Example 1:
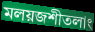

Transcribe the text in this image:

মলয়জশীতলাং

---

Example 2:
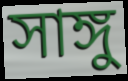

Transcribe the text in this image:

সাঙ্গু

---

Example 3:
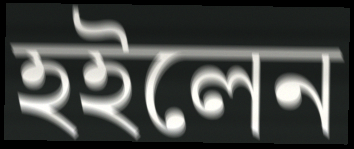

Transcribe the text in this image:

হইলেন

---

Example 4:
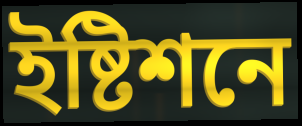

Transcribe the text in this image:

ইষ্টিশনে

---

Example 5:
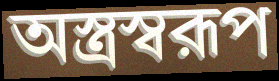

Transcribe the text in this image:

অস্ত্রস্বরূপ